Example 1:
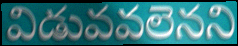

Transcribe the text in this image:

విడువవలెనని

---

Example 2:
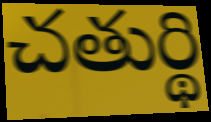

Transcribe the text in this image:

చతుర్థి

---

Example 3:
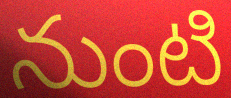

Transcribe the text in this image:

నుంటి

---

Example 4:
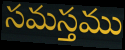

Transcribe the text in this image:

సమస్తము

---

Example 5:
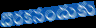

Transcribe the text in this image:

దొరకనందుకు